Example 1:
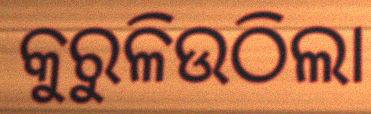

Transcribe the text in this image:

କୁରୁଳିଉଠିଲା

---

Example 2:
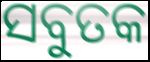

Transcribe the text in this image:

ସବୁତକ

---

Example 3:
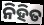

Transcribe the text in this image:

ନିହିତ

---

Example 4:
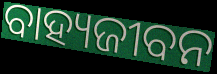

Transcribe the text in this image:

ବାହ୍ୟଜୀବନ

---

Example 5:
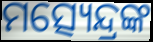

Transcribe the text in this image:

ମତ୍ସ୍ୟେନ୍ଦ୍ରଙ୍କ